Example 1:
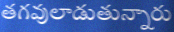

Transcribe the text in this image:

తగవులాడుతున్నారు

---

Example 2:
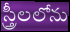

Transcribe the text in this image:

స్త్రీలలోను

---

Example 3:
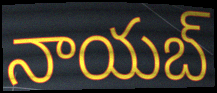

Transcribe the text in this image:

నాయబ్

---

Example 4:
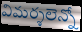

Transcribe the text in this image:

విమర్శలెన్నో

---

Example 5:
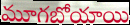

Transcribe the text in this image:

మూగబోయాయి